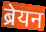
ब्रेयन